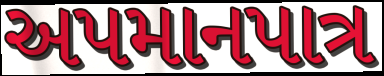
અપમાનપાત્ર